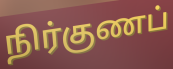
நிர்குணப்